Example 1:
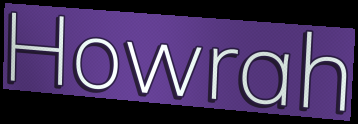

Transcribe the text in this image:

Howrah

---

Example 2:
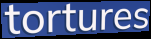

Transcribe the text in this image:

tortures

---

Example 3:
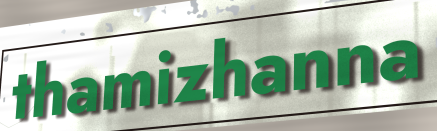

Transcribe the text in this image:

thamizhanna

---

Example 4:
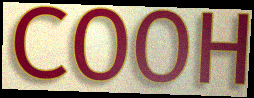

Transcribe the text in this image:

COOH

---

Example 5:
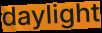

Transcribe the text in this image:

daylight